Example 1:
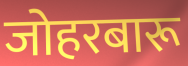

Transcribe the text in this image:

जोहरबारू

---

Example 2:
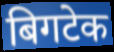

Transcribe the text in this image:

बिगटेक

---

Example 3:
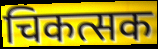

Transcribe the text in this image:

चिकत्सक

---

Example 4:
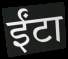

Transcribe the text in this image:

ईंटा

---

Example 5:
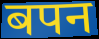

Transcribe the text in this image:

बपन